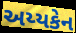
અય્યકેન